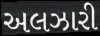
અલઝારી